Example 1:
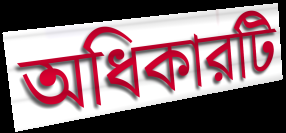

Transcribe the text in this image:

অধিকারটি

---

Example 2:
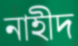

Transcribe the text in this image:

নাহীদ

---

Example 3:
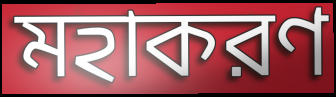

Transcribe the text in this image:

মহাকরণ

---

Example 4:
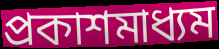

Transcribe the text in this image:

প্রকাশমাধ্যম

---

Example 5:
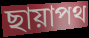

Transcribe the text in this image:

ছায়াপথ